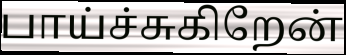
பாய்ச்சுகிறேன்